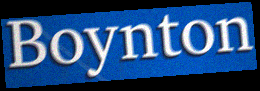
Boynton